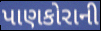
પાણકોરાની